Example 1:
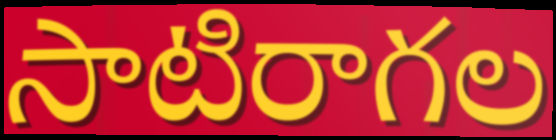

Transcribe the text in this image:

సాటిరాగల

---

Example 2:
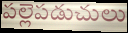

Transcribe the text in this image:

పల్లెపడుచులు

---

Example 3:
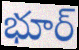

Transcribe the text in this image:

భూర్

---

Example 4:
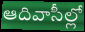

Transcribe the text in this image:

ఆదివాసీల్లో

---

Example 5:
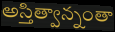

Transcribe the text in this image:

అస్తిత్వాన్నంతా